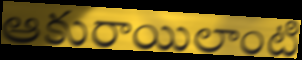
ఆకురాయిలాంటి